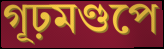
গূঢ়মণ্ডপে